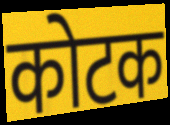
कोटक